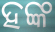
ହଙ୍କ